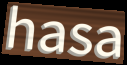
hasa